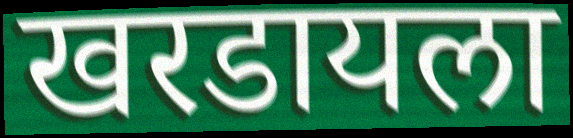
खरडायला